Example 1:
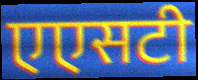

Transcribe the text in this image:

एएसटी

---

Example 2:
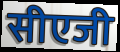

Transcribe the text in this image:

सीएजी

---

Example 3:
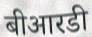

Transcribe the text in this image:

बीआरडी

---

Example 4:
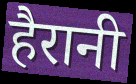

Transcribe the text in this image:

हैरानी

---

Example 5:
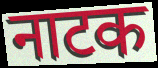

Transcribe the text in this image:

नाटक